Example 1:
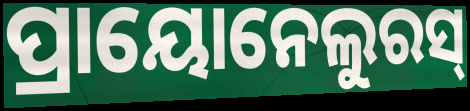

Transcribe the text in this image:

ପ୍ରାୟୋନେଲୁରସ୍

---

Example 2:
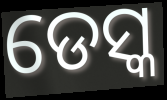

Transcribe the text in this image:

ଡେସ୍କ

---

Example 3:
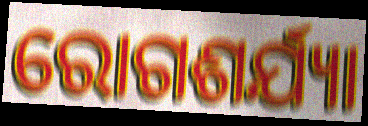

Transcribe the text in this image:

ରୋଗଶର୍ଯ୍ୟା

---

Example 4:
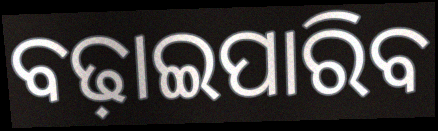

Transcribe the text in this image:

ବଢ଼ାଇପାରିବ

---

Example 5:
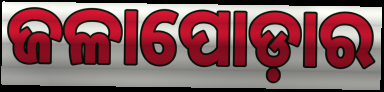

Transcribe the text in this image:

ଜଳାପୋଡ଼ାର